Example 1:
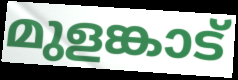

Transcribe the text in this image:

മുളങ്കാട്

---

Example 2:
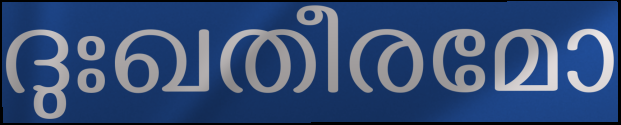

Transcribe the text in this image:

ദുഃഖതീരമോ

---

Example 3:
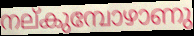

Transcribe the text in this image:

നല്കുമ്പോഴാണു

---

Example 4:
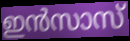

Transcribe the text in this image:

ഇൻസാസ്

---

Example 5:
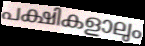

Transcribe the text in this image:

പക്ഷികളാലും